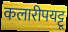
कलारीपयट्टू